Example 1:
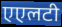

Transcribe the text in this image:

एएलटी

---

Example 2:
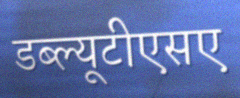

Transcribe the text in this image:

डब्ल्यूटीएसए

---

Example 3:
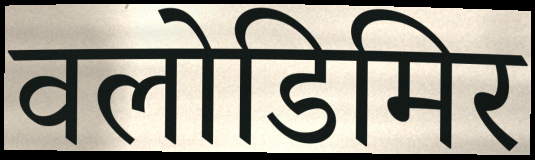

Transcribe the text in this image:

वलोडिमिर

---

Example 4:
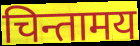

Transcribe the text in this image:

चिन्तामय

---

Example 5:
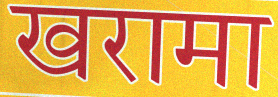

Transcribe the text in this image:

खरामा